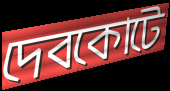
দেবকোটে